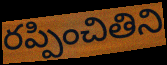
రప్పించితిని